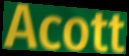
Acott